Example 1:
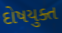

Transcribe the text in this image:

દોષયુક્ત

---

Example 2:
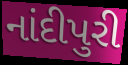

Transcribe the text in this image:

નાંદીપુરી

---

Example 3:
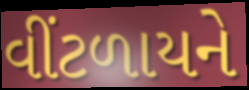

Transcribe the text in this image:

વીંટળાયને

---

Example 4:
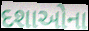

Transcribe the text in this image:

દશાઓના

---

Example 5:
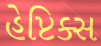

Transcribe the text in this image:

હેપ્ટિક્સ